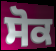
ਸੋਕ